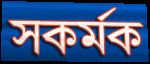
সকর্মক